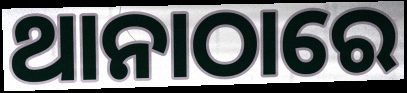
ଥାନାଠାରେ